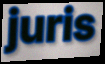
juris